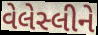
વેલેસ્લીને